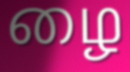
ழை